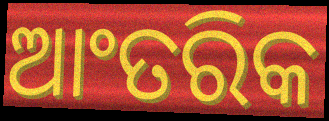
ଆଂତରିକ